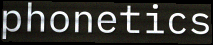
phonetics